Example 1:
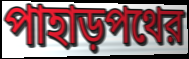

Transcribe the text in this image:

পাহাড়পথের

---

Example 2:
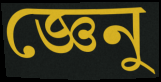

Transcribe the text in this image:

জ্ঞেনু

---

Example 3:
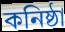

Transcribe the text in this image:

কনিষ্ঠা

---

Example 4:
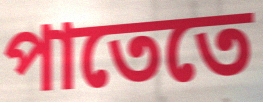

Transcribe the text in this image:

পাতেতে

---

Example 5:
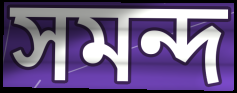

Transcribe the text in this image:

সমন্দ